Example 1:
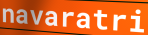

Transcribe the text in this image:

navaratri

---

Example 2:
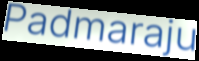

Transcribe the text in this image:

Padmaraju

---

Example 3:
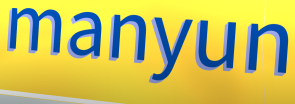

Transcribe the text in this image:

manyun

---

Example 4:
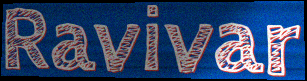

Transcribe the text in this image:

Ravivar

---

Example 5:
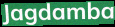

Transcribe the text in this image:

Jagdamba